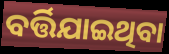
ବର୍ତ୍ତିଯାଇଥିବା